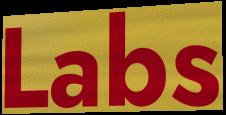
Labs